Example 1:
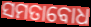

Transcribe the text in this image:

ସମତାବୋଧ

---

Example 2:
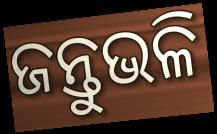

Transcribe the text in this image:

ଜନ୍ତୁଭଳି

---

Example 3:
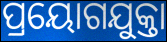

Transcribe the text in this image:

ପ୍ରୟୋଗଯୁକ୍ତା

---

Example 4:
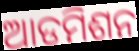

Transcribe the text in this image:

ଆଡମିଶନ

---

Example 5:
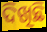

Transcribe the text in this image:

ଦିଖିଛି